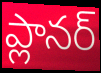
ప్లానర్